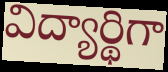
విద్యార్థిగా